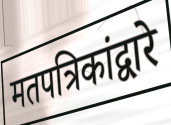
मतपत्रिकांद्वारे